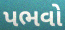
પભવો